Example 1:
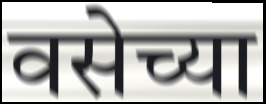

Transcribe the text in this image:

वसेच्या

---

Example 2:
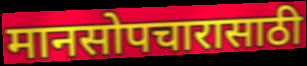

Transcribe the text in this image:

मानसोपचारासाठी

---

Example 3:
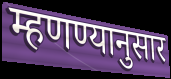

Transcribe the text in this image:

म्हणण्यानुसार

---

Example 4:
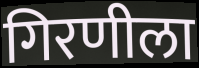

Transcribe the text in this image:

गिरणीला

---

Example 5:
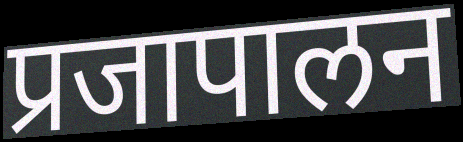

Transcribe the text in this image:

प्रजापालन